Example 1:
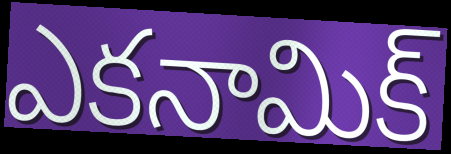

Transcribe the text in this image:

ఎకనామిక్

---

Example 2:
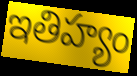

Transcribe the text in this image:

ఇతిహ్యం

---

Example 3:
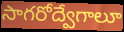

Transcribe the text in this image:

సాగరోద్వేగాలూ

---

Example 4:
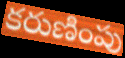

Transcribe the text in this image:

కరుణింపు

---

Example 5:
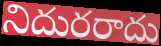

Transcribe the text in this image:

నిదురరాదు